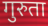
गुरुता